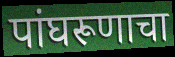
पांघरूणाचा